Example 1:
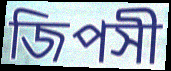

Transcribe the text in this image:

জিপসী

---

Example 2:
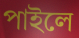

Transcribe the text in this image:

পাইলে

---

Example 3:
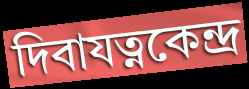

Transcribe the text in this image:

দিবাযত্নকেন্দ্র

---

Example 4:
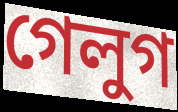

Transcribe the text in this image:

গেলুগ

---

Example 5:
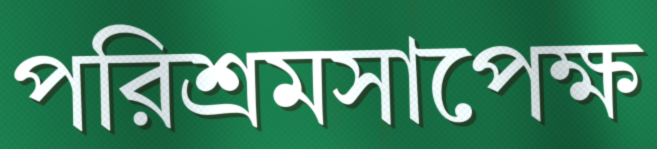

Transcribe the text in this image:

পরিশ্রমসাপেক্ষ